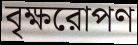
বৃক্ষরোপণ